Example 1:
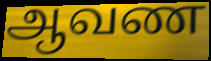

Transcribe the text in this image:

ஆவண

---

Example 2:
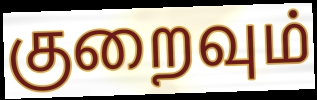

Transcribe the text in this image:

குறைவும்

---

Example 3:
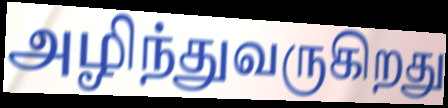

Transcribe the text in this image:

அழிந்துவருகிறது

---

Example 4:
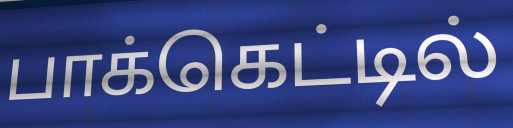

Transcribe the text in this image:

பாக்கெட்டில்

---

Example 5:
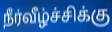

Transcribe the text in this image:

நீர்வீழ்ச்சிக்கு